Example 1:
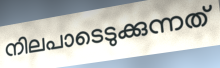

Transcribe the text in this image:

നിലപാടെടുക്കുന്നത്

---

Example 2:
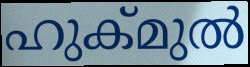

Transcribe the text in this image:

ഹുക്മുൽ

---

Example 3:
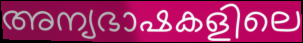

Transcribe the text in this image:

അന്യഭാഷകളിലെ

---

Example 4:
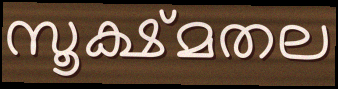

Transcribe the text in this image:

സൂക്ഷ്മതല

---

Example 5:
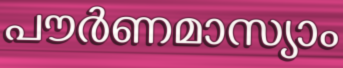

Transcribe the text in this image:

പൗർണമാസ്യാം